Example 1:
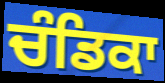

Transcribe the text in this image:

ਚੰਡਿਕਾ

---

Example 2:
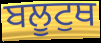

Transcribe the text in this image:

ਬਲੂਟੁਥ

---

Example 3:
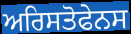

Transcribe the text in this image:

ਅਰਿਸਤੋਫੇਨਸ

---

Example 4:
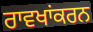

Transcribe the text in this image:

ਰਾਵਖਾਂਕਰਨ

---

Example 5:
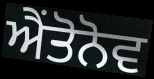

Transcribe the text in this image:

ਐਂਤੋਨੋਵ